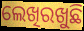
ଲେଖିରଖୁଛି